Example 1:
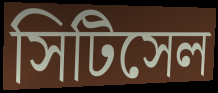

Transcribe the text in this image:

সিটিসেল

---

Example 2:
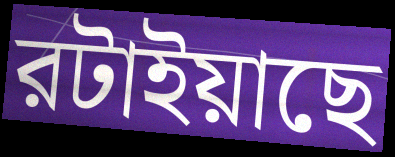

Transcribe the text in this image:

রটাইয়াছে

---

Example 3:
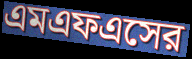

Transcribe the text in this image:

এমএফএসের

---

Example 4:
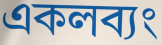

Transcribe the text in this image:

একলব্যং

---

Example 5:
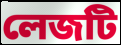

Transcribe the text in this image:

লেজটি